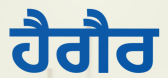
ਹੈਗੈਰ